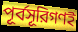
পূর্বসূরিগণই